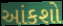
આંકશો